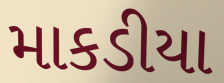
માકડીયા